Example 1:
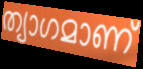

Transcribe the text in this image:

ത്യാഗമാണ്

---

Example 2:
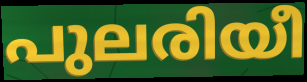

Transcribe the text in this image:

പുലരിയീ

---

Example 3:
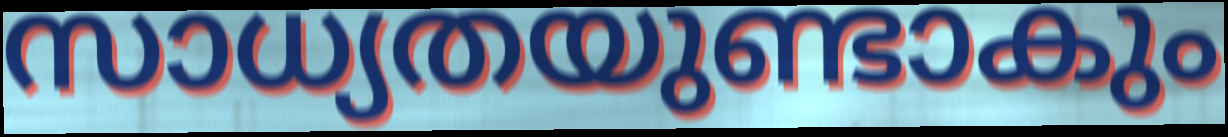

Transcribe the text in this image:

സാധ്യതയുണ്ടാകും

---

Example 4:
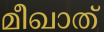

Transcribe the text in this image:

മീഖാത്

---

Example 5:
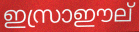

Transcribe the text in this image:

ഇസ്രാഈല്